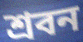
শ্ৰবন